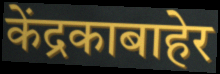
केंद्रकाबाहेर